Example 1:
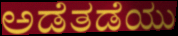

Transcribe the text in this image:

ಅಡೆತಡೆಯು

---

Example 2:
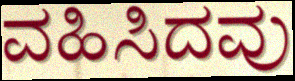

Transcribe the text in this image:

ವಹಿಸಿದವು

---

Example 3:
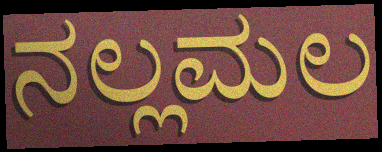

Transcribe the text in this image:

ನಲ್ಲಮಲ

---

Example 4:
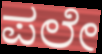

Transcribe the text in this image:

ಪಲೇ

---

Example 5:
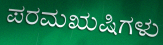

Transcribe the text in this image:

ಪರಮಋಷಿಗಳು